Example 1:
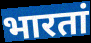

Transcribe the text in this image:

भारतां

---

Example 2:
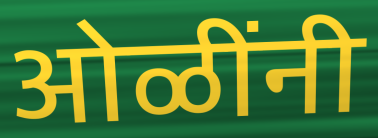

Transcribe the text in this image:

ओळींनी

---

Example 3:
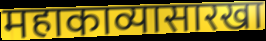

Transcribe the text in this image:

महाकाव्यासारखा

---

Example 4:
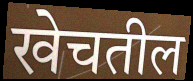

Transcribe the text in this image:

खेचतील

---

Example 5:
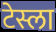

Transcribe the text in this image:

टेस्ला